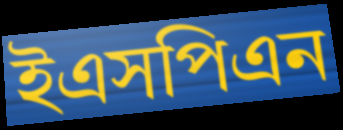
ইএসপিএন